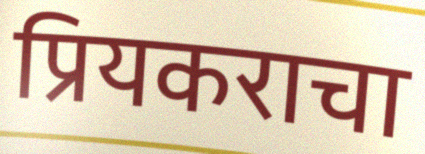
प्रियकराचा